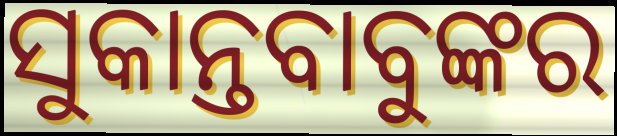
ସୁକାନ୍ତବାବୁଙ୍କର